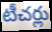
టీచర్లు